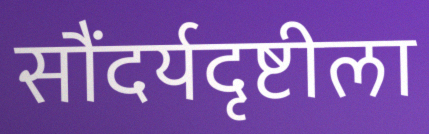
सौंदर्यदृष्टीला